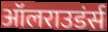
ऑलराउडंर्स